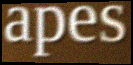
apes